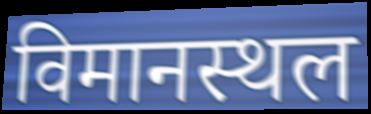
विमानस्थल